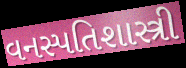
વનસ્પતિશાસ્ત્રી